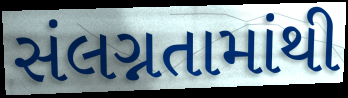
સંલગ્નતામાંથી